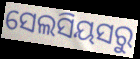
ସେଲସିୟସରୁ